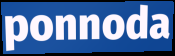
ponnoda